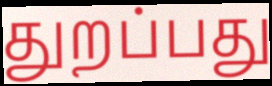
துறப்பது